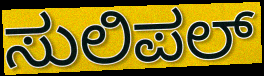
ಸುಲಿಪಲ್